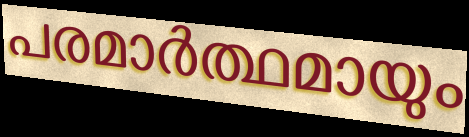
പരമാർത്ഥമായും